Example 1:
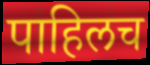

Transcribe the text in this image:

पाहिलच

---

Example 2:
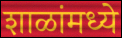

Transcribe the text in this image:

शाळांमध्ये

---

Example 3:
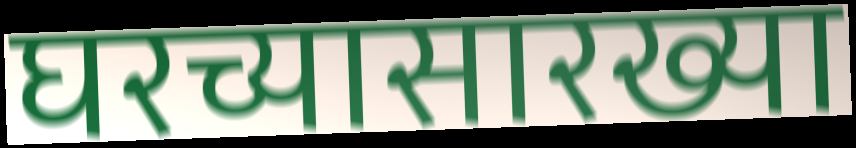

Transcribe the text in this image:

घरच्यासारख्या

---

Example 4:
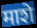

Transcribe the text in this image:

माशे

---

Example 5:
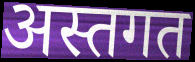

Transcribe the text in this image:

अस्तगत